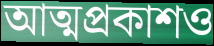
আত্মপ্রকাশও